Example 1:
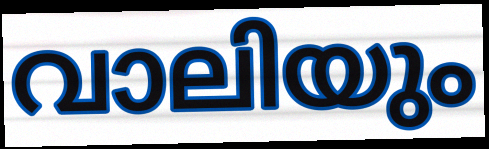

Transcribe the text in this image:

വാലിയും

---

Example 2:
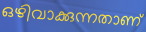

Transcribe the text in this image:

ഒഴിവാക്കുന്നതാണ്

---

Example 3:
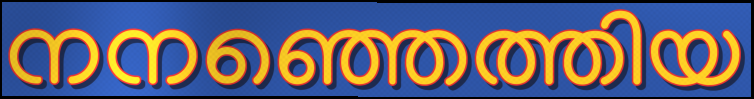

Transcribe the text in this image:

നനഞ്ഞെത്തിയ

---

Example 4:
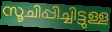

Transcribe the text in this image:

സൂചിപ്പിച്ചിട്ടുള്ള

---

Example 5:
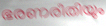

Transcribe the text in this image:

ഭരണരീതിയും